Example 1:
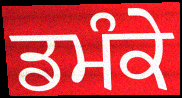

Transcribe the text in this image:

ਡਮੰਕੇ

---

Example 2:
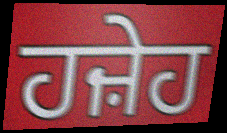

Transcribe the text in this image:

ਹਜ਼ੇਹ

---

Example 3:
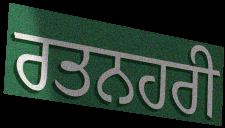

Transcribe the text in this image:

ਰਤਨਹਰੀ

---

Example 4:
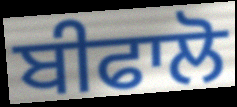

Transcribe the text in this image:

ਬੀਫਾਲੋ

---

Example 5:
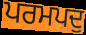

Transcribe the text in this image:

ਪਰਮਪਦੁ